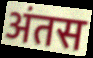
अंतस